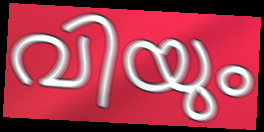
വിയും